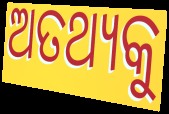
ଅତଥ୍ୟକୁ